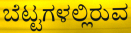
ಬೆಟ್ಟಗಳಲ್ಲಿರುವ